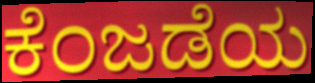
ಕೆಂಜಡೆಯ